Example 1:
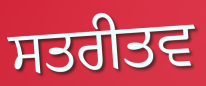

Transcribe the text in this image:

ਸਤਰੀਤਵ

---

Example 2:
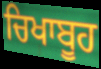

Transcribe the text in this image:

ਚਿਖਾਬੂਹ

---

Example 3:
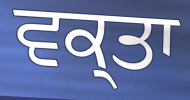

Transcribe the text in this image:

ਵਕ੍ਤਾ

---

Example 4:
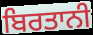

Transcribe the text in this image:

ਬਿਰਤਾਨੀ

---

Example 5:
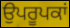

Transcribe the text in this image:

ਉਪਰੂਪਕਾਂ